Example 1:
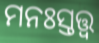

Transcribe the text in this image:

ମନଃସ୍ତତ୍ତ୍ଵ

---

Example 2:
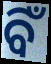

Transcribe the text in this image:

ବିଁ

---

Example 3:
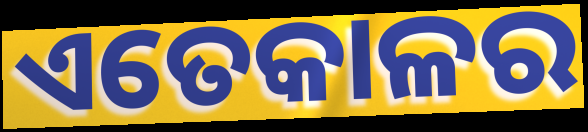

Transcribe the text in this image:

ଏତେକାଳର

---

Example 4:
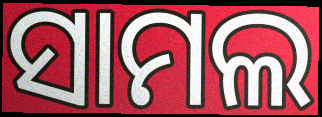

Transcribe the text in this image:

ସାମଲ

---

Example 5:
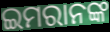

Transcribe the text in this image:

ଇମରାନଙ୍କ